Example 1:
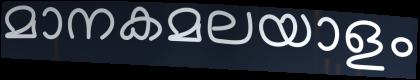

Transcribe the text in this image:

മാനകമലയാളം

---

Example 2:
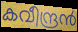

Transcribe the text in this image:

കവീന്ദ്രൻ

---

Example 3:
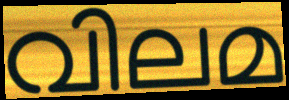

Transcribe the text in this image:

വിലമ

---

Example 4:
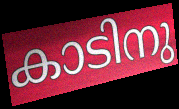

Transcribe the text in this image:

കാടിനു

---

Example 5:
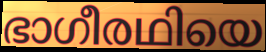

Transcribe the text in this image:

ഭാഗീരഥിയെ